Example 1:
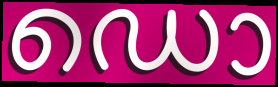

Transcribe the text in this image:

ഡൊ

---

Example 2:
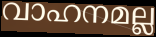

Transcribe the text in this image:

വാഹനമല്ല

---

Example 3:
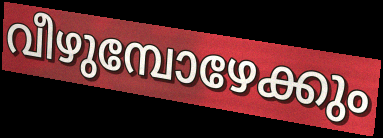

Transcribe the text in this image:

വീഴുമ്പോഴേക്കും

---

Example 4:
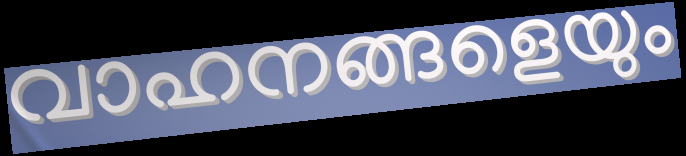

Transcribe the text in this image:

വാഹനങ്ങളെയും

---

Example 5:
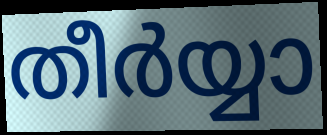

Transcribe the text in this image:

തീർയ്യാ